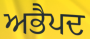
ਅਭੈਪਦ